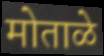
मोताळे